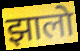
झालो